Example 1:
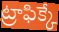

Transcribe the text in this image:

ట్రాఫిక్కే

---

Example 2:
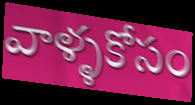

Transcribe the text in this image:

వాళ్ళకోసం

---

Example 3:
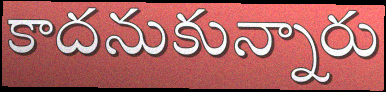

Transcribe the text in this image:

కాదనుకున్నారు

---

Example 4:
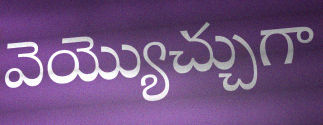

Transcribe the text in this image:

వెయ్యొచ్చుగా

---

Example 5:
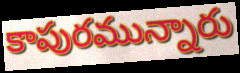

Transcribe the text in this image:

కాపురమున్నారు